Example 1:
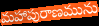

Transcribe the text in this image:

మహాపురాణమును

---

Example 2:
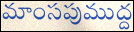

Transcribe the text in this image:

మాంసపుముద్ద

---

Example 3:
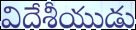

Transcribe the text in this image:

విదేశీయుడు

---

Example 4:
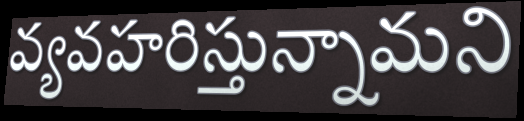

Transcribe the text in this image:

వ్యవహరిస్తున్నామని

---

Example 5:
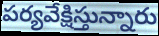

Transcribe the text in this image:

పర్యవేక్షిస్తున్నారు